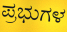
ಪ್ರಭುಗಳ